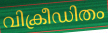
വിക്രീഡിതം